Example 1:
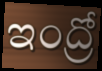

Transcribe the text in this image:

ఇంద్రో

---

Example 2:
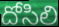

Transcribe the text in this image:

దోసిలి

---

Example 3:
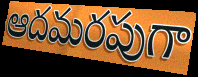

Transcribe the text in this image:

ఆదమరపుగా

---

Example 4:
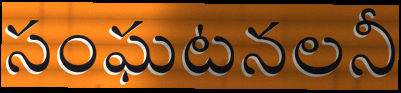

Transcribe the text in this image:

సంఘటనలనీ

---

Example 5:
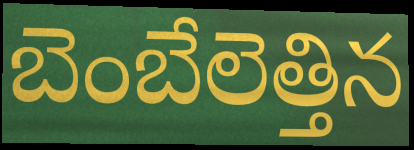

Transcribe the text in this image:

బెంబేలెత్తిన